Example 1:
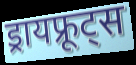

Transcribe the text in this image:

ड्रायफ्रूट्स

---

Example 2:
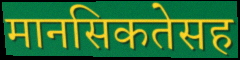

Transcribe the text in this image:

मानसिकतेसह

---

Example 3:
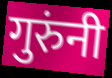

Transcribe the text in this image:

गुरुंनी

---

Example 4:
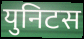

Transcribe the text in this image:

युनिटस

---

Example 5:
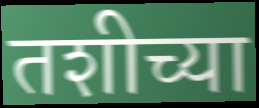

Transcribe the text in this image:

तशीच्या